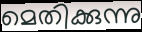
മെതിക്കുന്നു